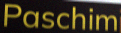
Paschim